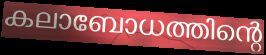
കലാബോധത്തിന്റെ